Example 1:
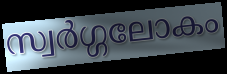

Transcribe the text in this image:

സ്വർഗ്ഗലോകം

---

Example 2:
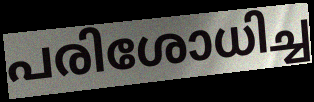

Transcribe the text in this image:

പരിശോധിച്ച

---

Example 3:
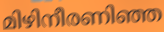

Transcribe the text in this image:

മിഴിനീരണിഞ്ഞ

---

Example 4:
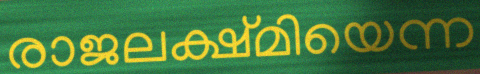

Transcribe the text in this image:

രാജലക്ഷ്മിയെന്ന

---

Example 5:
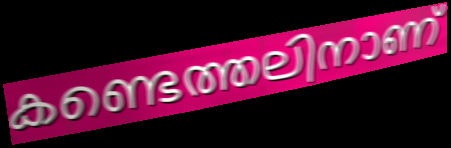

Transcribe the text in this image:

കണ്ടെത്തലിനാണ്